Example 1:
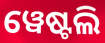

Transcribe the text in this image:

ୱେଷ୍ଟଲି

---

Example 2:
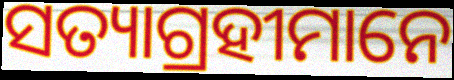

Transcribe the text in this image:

ସତ୍ୟାଗ୍ରହୀମାନେ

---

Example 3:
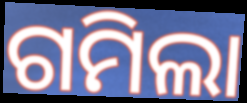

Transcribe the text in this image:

ଗମିଲା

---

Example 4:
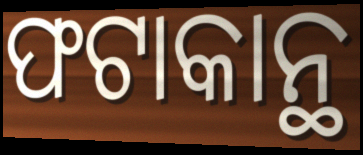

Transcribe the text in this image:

ଫଟାକାନ୍ଥ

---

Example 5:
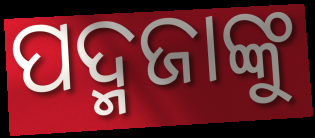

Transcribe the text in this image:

ପଦ୍ମଜାଙ୍କୁ